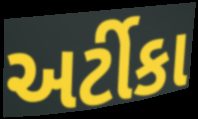
અર્ટીકા